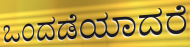
ಒಂದಡೆಯಾದರೆ